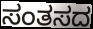
ಸಂತಸದ